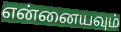
என்னையவும்